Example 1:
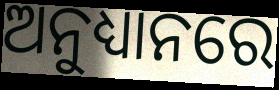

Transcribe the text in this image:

ଅନୁଧ୍ୟାନରେ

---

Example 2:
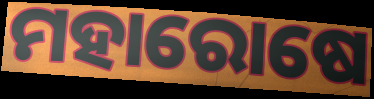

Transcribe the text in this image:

ମହାରୋଷେ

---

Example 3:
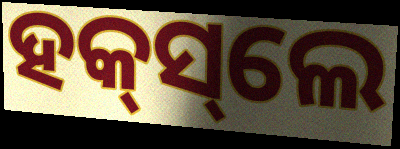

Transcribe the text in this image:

ହକ୍‌ସ୍‌ଲେ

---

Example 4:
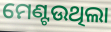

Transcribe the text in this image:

ମେଣ୍ଟଉଥିଲା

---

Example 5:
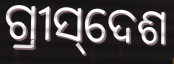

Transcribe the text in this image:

ଗ୍ରୀସ୍‌ଦେଶ